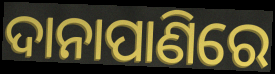
ଦାନାପାଣିରେ